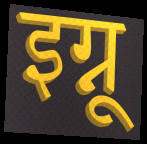
इग्नू